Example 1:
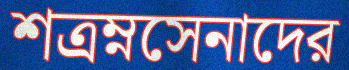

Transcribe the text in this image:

শত্রম্নসেনাদের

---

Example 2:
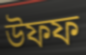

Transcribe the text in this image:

উফফ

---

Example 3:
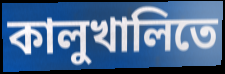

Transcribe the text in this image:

কালুখালিতে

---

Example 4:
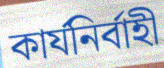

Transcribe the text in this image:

কার্যনির্বাহী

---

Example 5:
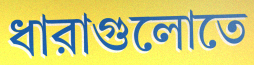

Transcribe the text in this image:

ধারাগুলোতে